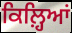
ਕਿਲ਼੍ਹਿਆਂ